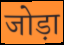
जोड़ा